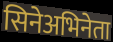
सिनेअभिनेता